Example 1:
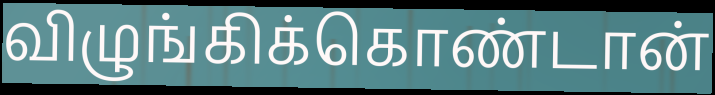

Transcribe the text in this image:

விழுங்கிக்கொண்டான்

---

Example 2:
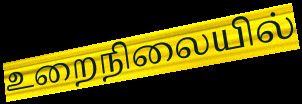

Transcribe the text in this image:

உறைநிலையில்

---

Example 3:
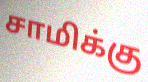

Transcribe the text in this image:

சாமிக்கு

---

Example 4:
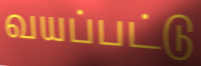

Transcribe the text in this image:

வயப்பட்டு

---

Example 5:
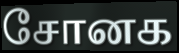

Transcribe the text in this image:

சோனக